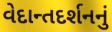
વેદાન્તદર્શનનું